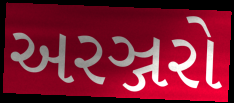
અરઞ્જરો